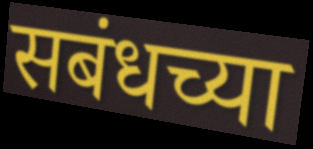
सबंधच्या